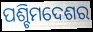
ପଶ୍ଚିମଦେଶର